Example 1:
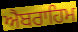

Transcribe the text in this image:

ਐਬਰਾਹਿਮ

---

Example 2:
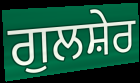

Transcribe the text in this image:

ਗੁਲਸ਼ੇਰ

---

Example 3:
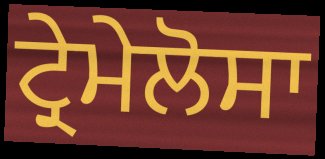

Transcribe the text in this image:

ਟ੍ਰੇਮੇਲੋਸਾ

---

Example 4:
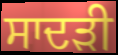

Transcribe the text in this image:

ਸਾਦੜੀ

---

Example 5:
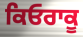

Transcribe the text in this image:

ਕਿਓਰਾਕੂ